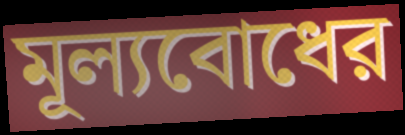
মূল্যবোধের